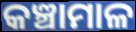
କଞ୍ଚାମାଳ